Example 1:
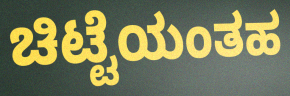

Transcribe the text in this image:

ಚಿಟ್ಟೆಯಂತಹ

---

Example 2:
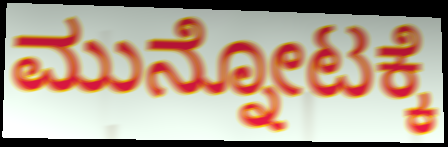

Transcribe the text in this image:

ಮುನ್ನೋಟಕ್ಕೆ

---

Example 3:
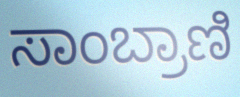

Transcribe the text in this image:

ಸಾಂಬ್ರಾಣಿ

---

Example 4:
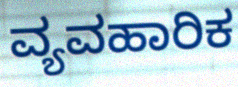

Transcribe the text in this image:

ವ್ಯವಹಾರಿಕ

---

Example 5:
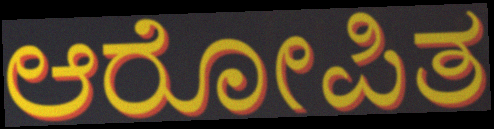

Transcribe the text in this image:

ಆರೋಪಿತ